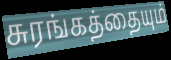
சுரங்கத்தையும்